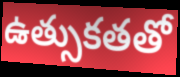
ఉత్సుకతతో